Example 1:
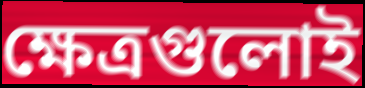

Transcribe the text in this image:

ক্ষেত্রগুলোই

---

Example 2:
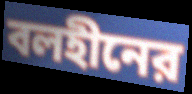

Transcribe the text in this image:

বলহীনের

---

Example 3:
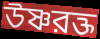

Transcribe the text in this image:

উষ্ণরক্ত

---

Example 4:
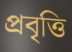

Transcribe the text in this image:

প্রবৃত্তি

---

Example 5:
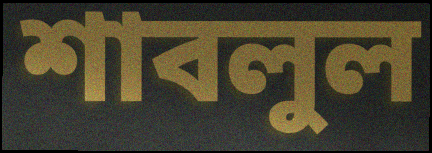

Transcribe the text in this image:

শাবলুল